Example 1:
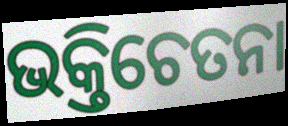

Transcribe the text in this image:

ଭକ୍ତିଚେତନା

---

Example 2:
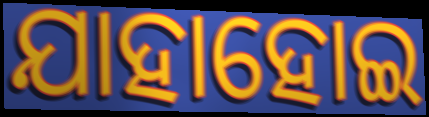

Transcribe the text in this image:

ଯାହାହୋଇ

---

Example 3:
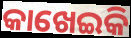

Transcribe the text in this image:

କାଖେଇକି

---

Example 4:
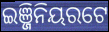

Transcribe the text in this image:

ଇଞ୍ଜିନିୟରଟେ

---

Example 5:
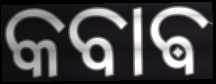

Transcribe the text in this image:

କବାଵ